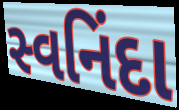
સ્વનિંદા